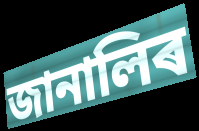
জানালিৰ